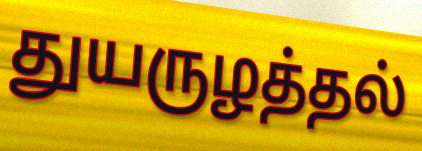
துயருழத்தல்